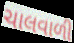
ચાલવાળી